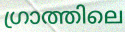
ഗ്രാത്തിലെ